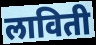
लाविती